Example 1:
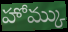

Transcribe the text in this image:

హోమ్కు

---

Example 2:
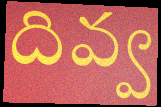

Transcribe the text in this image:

దివ్వ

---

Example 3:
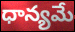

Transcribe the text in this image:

ధాన్యమే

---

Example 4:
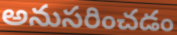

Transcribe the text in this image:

అనుసరించడం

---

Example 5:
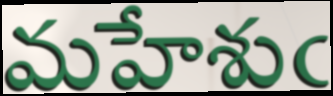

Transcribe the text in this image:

మహేశుఁ